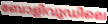
ബോളിവുഡിലെ